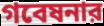
গবেষনার